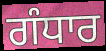
ਗੰਧਾਰ